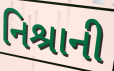
નિશ્રાની